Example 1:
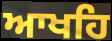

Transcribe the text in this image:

ਆਖਹਿ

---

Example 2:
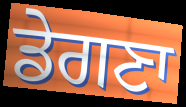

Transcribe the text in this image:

ਡੇਗਣਾ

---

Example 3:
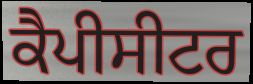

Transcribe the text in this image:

ਕੈਪੀਸੀਟਰ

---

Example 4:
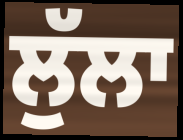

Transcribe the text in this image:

ਲੁੱਲਾ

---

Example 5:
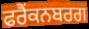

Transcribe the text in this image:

ਫਰੈਂਕਨਬਰਗ